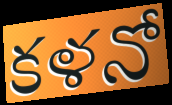
కళనో